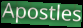
Apostles